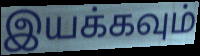
இயக்கவும்